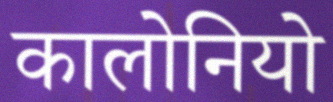
कालोनियो